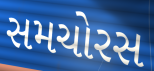
સમચોરસ